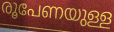
രൂപേണയുള്ള